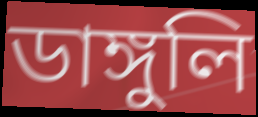
ডাঙ্গুলি